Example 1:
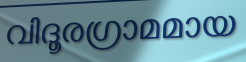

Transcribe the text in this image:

വിദൂരഗ്രാമമായ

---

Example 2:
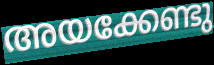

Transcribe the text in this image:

അയക്കേണ്ടു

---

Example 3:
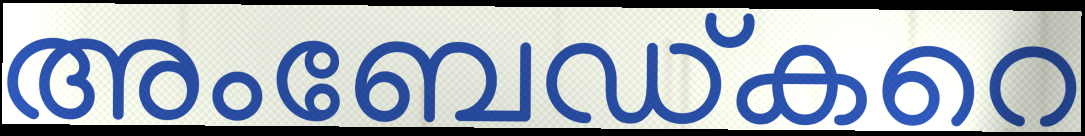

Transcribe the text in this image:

അംബേഡ്കറെ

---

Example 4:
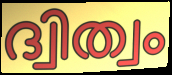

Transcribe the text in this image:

ദ്വിത്വം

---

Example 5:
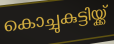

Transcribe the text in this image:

കൊച്ചുകുട്ടിയ്ക്ക്